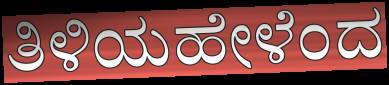
ತಿಳಿಯಹೇಳೆಂದ